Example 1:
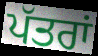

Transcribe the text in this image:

ਪੱਤਰਾਂ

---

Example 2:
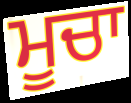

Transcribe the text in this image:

ਮੂਚਾ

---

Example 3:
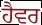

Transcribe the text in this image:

ਹੈਵਰ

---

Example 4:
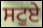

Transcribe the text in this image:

ਸਟੁਏ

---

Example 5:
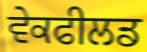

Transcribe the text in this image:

ਵੇਕਫੀਲਡ